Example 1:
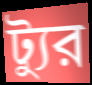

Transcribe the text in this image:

ট্যুর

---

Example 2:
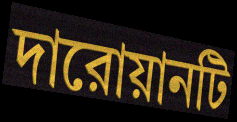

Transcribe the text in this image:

দারোয়ানটি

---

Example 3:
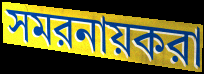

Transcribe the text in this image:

সমরনায়করা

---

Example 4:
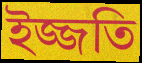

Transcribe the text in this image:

ইজ্জতি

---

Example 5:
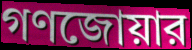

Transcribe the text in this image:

গণজোয়ার